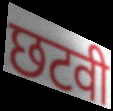
छटवी